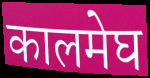
कालमेघ